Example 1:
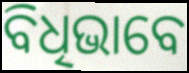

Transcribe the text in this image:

ବିଧିଭାବେ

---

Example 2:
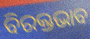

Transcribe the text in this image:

ବିରକ୍ତଭାବ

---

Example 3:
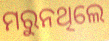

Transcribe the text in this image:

ମରୁନଥିଲେ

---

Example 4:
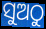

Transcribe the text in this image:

ସୁଅଠୁ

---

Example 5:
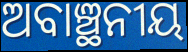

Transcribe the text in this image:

ଅବାଞ୍ଛନୀୟ